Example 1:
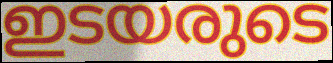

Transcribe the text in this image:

ഇടയരുടെ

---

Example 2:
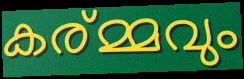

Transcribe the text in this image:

കര്മ്മവും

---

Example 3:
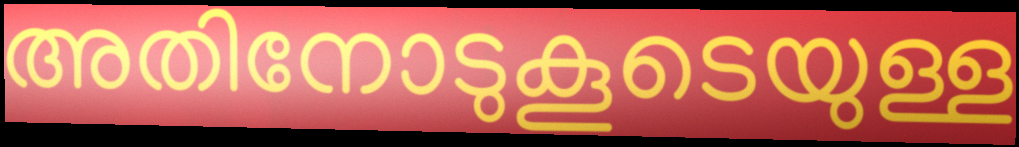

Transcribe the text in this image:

അതിനോടുകൂടെയുള്ള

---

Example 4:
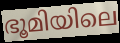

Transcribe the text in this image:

ഭൂമിയിലെ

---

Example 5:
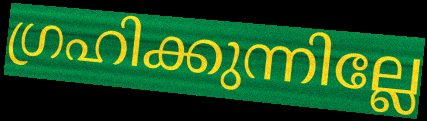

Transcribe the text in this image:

ഗ്രഹിക്കുന്നില്ലേ